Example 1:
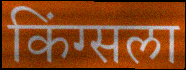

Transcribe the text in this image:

किंग्सला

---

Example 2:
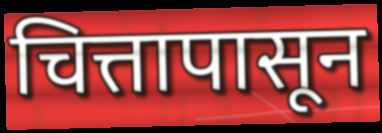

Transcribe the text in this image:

चित्तापासून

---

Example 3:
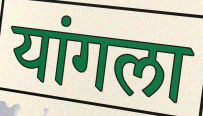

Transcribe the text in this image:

यांगला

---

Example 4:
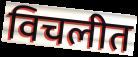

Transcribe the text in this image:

विचलीत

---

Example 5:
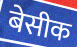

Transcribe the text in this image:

बेसीक